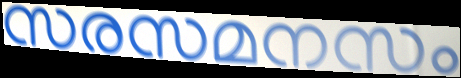
സരസമനസം